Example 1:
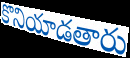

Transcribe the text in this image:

కొనియాడతారు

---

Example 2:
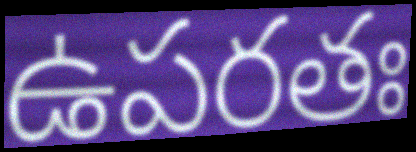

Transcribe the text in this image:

ఉపరతః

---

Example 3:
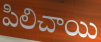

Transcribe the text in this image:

పిలిచాయి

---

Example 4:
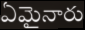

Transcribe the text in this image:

ఏమైనారు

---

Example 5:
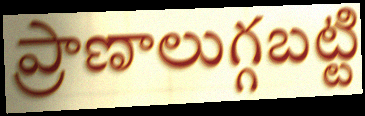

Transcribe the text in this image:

ప్రాణాలుగ్గబట్టి